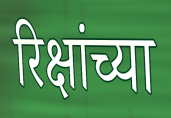
रिक्षांच्या